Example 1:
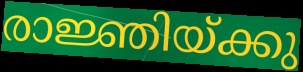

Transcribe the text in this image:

രാജ്ഞിയ്ക്കു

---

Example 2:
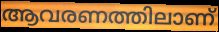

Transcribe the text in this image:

ആവരണത്തിലാണ്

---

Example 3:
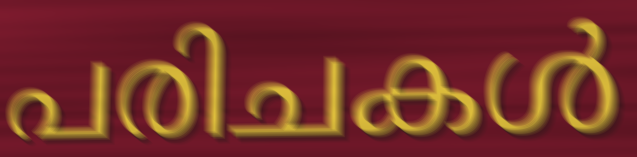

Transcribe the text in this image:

പരിചകൾ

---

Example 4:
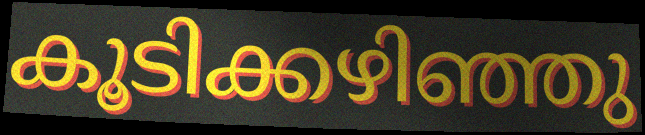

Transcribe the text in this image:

കൂടിക്കഴിഞ്ഞു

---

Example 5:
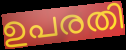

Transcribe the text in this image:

ഉപരതി